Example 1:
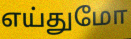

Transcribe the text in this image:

எய்துமோ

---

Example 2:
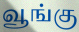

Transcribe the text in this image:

வூங்கு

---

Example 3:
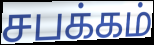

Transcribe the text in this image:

சபக்கம்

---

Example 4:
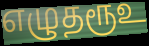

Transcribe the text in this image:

எழுதரூஉ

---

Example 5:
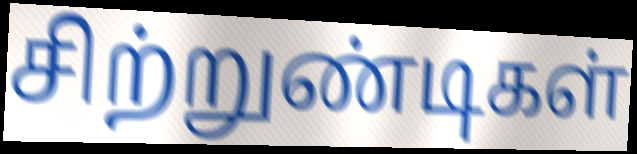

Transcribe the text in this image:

சிற்றுண்டிகள்